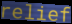
relief